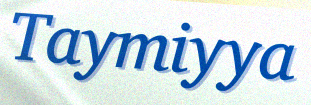
Taymiyya